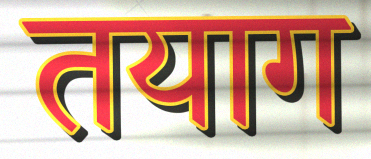
तयाग